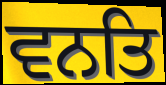
ਵਨਤਿ